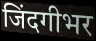
जिंदगीभर